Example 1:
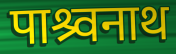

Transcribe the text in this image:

पाश्र्वनाथ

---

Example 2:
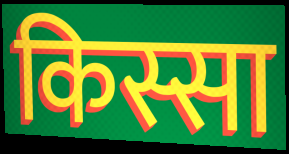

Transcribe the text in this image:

किस्सा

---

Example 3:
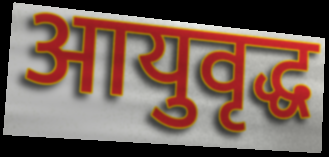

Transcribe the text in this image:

आयुवृद्ध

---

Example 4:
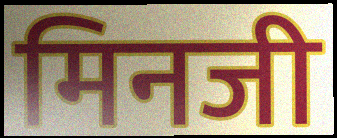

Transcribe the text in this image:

मिनजी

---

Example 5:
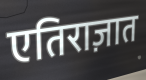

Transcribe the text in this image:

एतिराज़ात